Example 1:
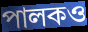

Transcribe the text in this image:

পালকও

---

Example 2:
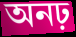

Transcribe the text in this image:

অনঢ়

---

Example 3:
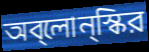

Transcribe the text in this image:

অব্‌লোন্‌স্কির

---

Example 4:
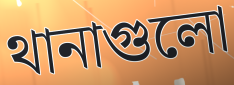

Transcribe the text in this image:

থানাগুলো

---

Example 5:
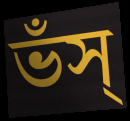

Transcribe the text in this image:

ভঁস্